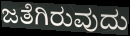
ಜತೆಗಿರುವುದು